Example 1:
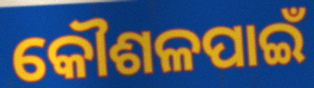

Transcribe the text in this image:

କୌଶଳପାଇଁ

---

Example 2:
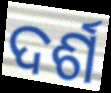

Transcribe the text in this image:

ଦର୍ଶ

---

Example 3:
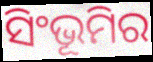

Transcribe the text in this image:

ସିଂଭୂମିର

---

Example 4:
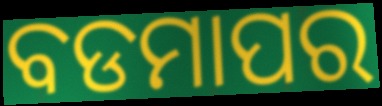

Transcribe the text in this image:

ବଡମାପର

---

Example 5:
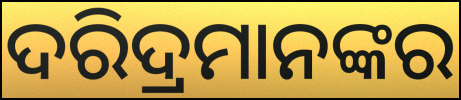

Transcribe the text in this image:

ଦରିଦ୍ରମାନଙ୍କର